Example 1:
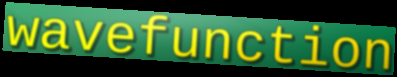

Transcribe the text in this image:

wavefunction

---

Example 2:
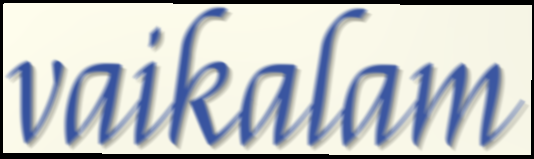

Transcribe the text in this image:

vaikalam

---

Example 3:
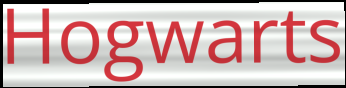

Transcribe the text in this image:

Hogwarts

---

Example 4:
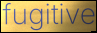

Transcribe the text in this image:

fugitive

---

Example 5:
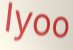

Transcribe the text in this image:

lyoo